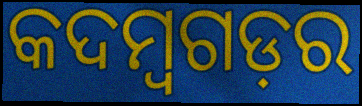
କଦମ୍ବଗଡ଼ର